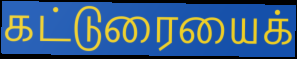
கட்டுரையைக்